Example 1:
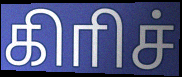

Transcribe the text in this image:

கிரிச்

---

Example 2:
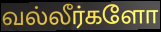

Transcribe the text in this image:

வல்லீர்களோ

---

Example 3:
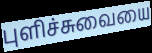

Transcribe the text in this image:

புளிச்சுவையை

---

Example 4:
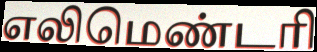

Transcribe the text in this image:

எலிமெண்டரி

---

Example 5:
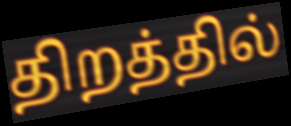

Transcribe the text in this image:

திறத்தில்